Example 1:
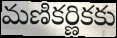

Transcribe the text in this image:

మణికర్ణికకు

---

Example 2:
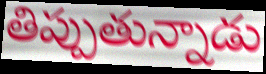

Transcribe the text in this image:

తిప్పుతున్నాడు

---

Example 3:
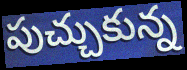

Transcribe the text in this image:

పుచ్చుకున్న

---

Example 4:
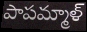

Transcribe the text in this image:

పాపమ్మాళ్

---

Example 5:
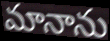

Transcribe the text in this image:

మానాను